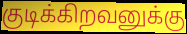
குடிக்கிறவனுக்கு